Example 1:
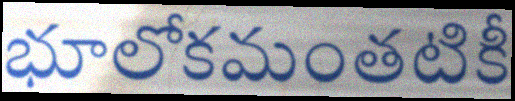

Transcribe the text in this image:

భూలోకమంతటికీ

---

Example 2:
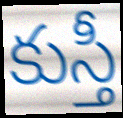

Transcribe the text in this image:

కుస్తీ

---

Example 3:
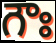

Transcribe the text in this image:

గౌః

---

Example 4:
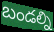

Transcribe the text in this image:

బండల్ని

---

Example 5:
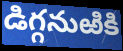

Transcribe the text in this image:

డిగ్గనుఱికి